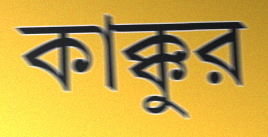
কাক্কুর